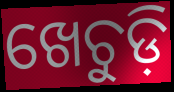
ଖେଚୁଡ଼ି